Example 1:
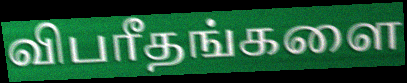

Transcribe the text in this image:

விபரீதங்களை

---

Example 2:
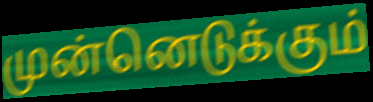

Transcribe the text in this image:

முன்னெடுக்கும்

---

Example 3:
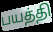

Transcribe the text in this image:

பயத்தி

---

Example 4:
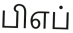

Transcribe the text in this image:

பிஎப்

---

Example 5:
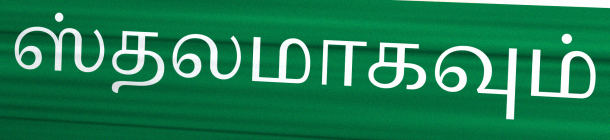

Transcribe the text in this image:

ஸ்தலமாகவும்